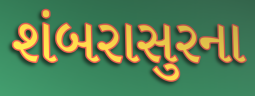
શંબરાસુરના